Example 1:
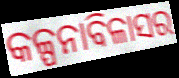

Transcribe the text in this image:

କଳ୍ପନାବିଳାସର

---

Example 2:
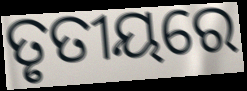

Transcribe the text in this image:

ତୃତୀୟରେ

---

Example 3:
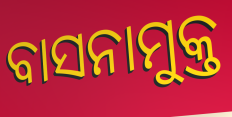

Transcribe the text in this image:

ବାସନାମୁକ୍ତ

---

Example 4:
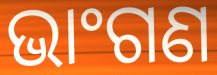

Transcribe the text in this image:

ଭାଂଗଣ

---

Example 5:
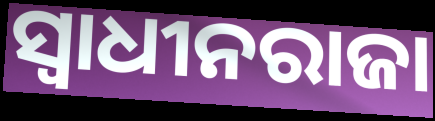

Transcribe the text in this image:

ସ୍ୱାଧୀନରାଜା